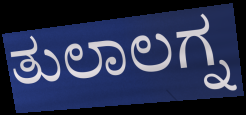
ತುಲಾಲಗ್ನ